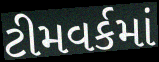
ટીમવર્કમાં